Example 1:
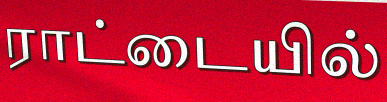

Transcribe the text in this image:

ராட்டையில்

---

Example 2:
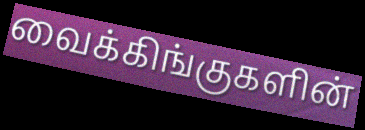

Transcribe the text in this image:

வைக்கிங்குகளின்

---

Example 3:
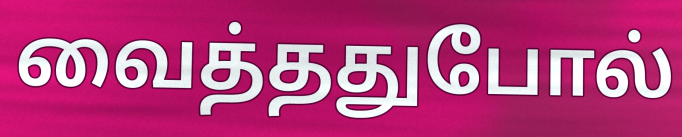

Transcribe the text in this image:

வைத்ததுபோல்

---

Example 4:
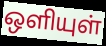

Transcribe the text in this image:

ஒளியுள்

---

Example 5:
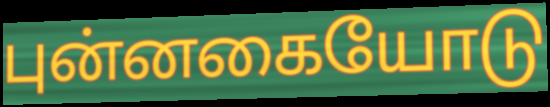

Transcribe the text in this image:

புன்னகையோடு